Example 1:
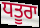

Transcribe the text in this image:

ਧਤੂਰਾ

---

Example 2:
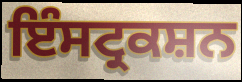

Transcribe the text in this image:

ਇੰਸਟ੍ਰਕਸ਼ਨ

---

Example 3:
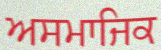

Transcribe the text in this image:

ਅਸਮਾਜਿਕ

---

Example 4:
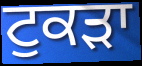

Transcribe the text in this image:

ਟੁਕੜਾ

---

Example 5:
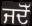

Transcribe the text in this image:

ਜਦੋੱ